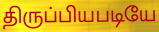
திருப்பியபடியே